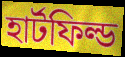
হার্টফিল্ড